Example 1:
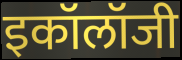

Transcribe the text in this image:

इकॉलॉजी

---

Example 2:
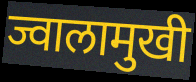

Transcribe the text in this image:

ज्वालामुखी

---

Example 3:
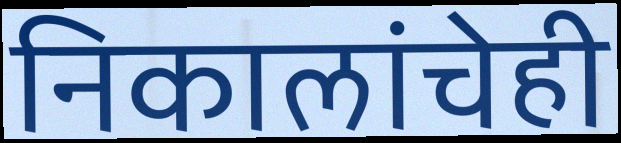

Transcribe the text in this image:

निकालांचेही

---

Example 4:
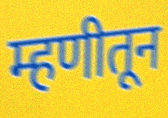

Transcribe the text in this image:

म्हणीतून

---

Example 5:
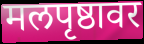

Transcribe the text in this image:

मलपृष्ठावर